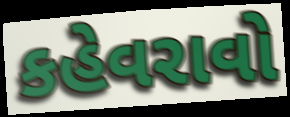
કહેવરાવો